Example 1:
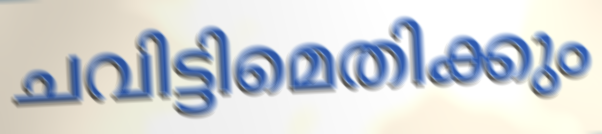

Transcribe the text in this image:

ചവിട്ടിമെതിക്കും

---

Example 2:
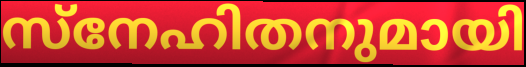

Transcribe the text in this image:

സ്നേഹിതനുമായി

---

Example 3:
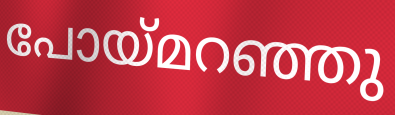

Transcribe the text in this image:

പോയ്മറഞ്ഞു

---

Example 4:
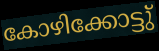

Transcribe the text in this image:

കോഴിക്കോട്ടു്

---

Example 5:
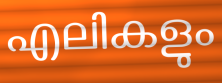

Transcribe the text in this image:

എലികളും